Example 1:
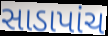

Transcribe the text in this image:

સાડાપાંચ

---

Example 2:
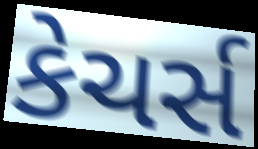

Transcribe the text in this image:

કેચર્સ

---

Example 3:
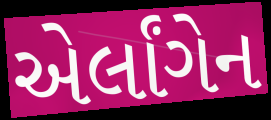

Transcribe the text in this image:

એર્લાંગેન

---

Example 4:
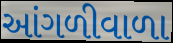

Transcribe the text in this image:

આંગળીવાળા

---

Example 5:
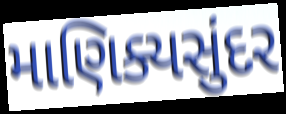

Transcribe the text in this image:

માણિક્યસુંદર